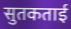
सुतकताई